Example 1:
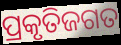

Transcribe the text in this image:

ପ୍ରକୃତିଜଗତ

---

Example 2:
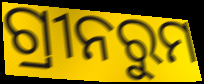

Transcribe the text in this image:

ଗ୍ରୀନରୁମ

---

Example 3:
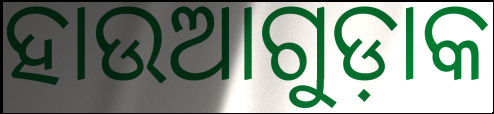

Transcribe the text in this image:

ହାଉଆଗୁଡ଼ାକ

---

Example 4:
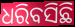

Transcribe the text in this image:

ଧରିବସିଛି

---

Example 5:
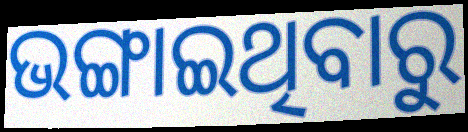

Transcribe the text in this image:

ଭଙ୍ଗାଇଥିବାରୁ